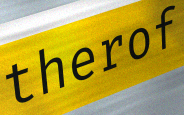
therof